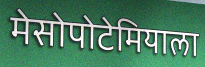
मेसोपोटेमियाला